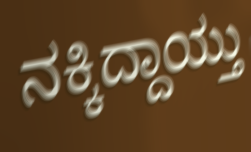
ನಕ್ಕಿದ್ದಾಯ್ತು